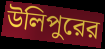
উলিপুরের